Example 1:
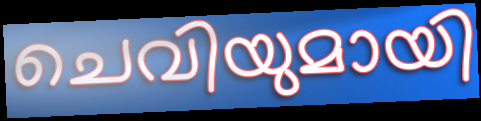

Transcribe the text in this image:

ചെവിയുമായി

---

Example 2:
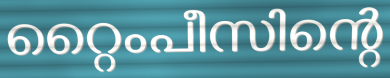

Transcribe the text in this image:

റ്റൈംപീസിന്റെ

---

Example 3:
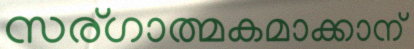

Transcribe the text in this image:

സര്ഗാത്മകമാക്കാന്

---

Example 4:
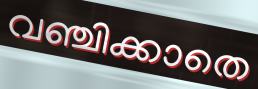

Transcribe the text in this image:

വഞ്ചിക്കാതെ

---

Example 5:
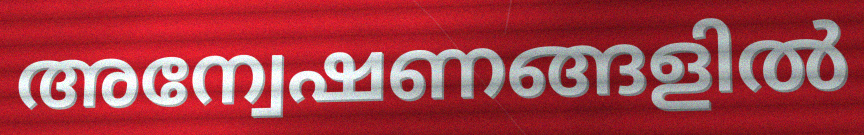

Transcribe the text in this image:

അന്വേഷണങ്ങളിൽ